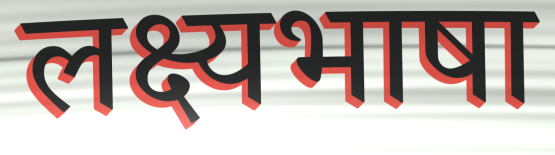
लक्ष्यभाषा